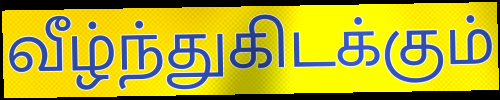
வீழ்ந்துகிடக்கும்